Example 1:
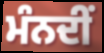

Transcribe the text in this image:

ਮੰਨਦੀਂ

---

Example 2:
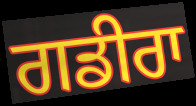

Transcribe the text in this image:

ਗਡੀਰਾ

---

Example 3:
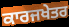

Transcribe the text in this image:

ਕਾਰਜਖੇਤਰ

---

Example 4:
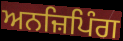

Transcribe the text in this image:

ਅਨਜ਼ਿਪਿੰਗ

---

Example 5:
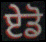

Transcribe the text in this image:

ਏਡੋ